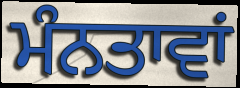
ਮੰਨਤਾਵਾਂ